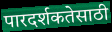
पारदर्शकतेसाठी